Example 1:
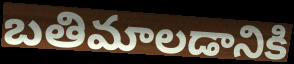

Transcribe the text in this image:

బతిమాలడానికి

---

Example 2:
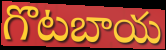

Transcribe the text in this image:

గొటబాయ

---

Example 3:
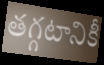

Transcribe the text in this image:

తగ్గటానికీ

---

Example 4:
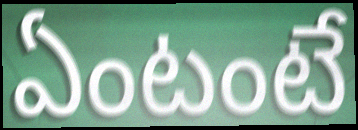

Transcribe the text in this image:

ఏంటంటే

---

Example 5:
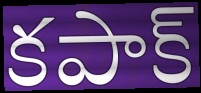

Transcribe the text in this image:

కపాక్